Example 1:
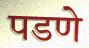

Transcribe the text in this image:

पडणे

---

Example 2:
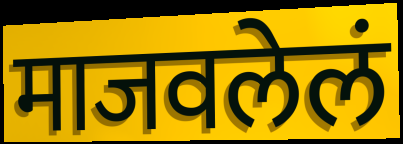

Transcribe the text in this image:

माजवलेलं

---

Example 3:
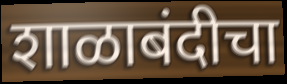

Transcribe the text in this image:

शाळाबंदीचा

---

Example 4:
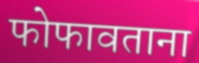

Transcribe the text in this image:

फोफावताना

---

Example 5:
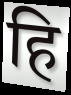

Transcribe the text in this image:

हि